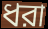
ধরা